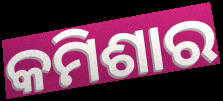
କମିଶାର